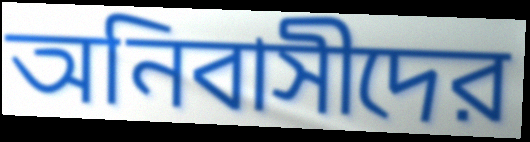
অনিবাসীদের